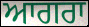
ਆਗਰਾ